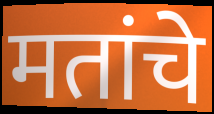
मतांचे